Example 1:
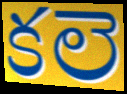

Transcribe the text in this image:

కలె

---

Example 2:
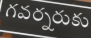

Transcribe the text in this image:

గవర్నరుకు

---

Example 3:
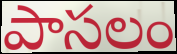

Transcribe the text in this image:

పాసలం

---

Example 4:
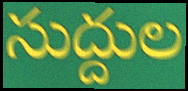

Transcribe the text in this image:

సుద్దుల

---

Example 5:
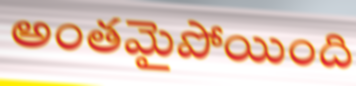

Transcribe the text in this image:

అంతమైపోయింది